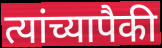
त्यांच्यापैकी